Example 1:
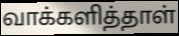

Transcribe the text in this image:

வாக்களித்தாள்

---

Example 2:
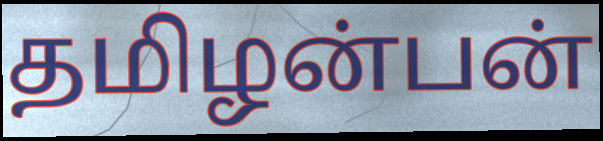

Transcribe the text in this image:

தமிழன்பன்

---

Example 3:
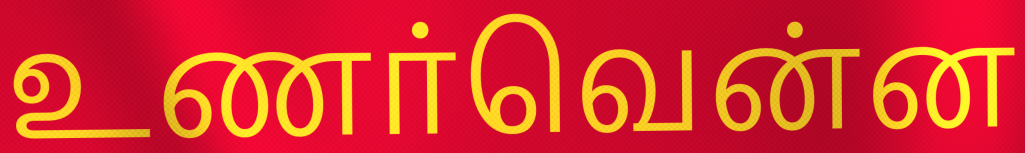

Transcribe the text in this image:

உணர்வென்ன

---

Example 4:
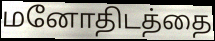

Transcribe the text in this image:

மனோதிடத்தை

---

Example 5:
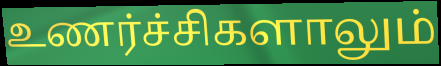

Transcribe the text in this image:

உணர்ச்சிகளாலும்